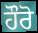
ਹੌਰੋ